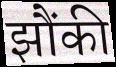
झौंकी